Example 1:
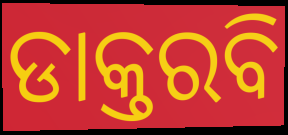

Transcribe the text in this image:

ଡାକ୍ତରବି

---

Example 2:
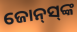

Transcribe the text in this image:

ଜୋନ୍‌ସ୍‌ଙ୍କ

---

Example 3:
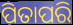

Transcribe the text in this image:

ପିତାପରି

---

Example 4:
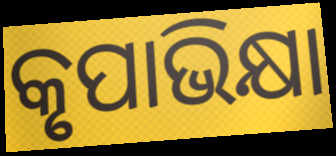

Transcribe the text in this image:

କୃପାଭିକ୍ଷା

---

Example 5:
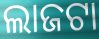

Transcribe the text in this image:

ଲାଜଟା